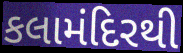
કલામંદિરથી